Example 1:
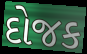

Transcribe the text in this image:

દોજક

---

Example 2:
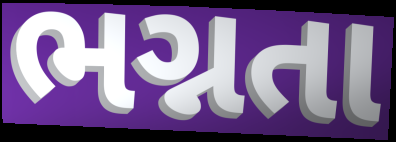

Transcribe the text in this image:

ભગ્નતા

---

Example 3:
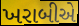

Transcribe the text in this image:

ખરાબીએ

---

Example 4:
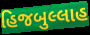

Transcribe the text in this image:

હિજબુલ્લાહ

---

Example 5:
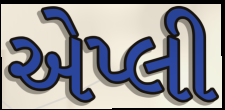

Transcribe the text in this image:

એપ્લી